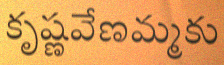
కృష్ణవేణమ్మకు